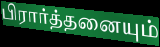
பிரார்த்தனையும்